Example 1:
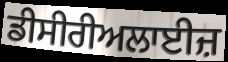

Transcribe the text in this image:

ਡੀਸੀਰੀਅਲਾਈਜ਼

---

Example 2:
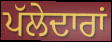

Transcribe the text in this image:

ਪੱਲੇਦਾਰਾਂ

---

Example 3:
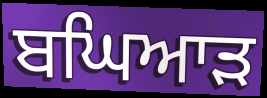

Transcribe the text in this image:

ਬਘਿਆੜ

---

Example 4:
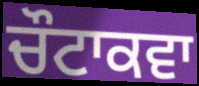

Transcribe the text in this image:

ਚੌਟਾਕਵਾ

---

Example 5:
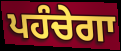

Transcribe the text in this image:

ਪਹੰਚੇਗਾ